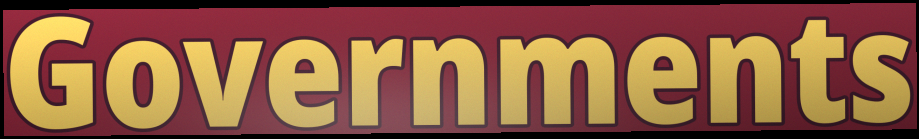
Governments